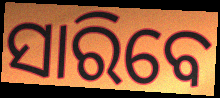
ସାରିବେ